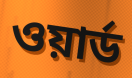
ওয়ার্ড